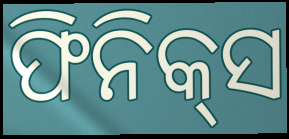
ଫିନିକ୍‌ସ